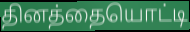
தினத்தையொட்டி